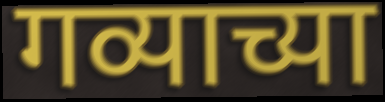
गव्याच्या